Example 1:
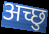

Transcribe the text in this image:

अच्छु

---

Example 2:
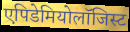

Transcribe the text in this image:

एपिडेमियोलॉजिस्ट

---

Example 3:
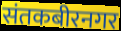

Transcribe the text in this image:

संतकबीरनगर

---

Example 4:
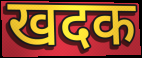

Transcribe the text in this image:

खदक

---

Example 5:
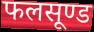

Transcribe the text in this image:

फलसूण्ड